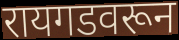
रायगडवरून